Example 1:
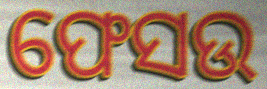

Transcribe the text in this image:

ଫେସଉ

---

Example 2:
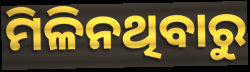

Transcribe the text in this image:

ମିଳିନଥିବାରୁ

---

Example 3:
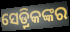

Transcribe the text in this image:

ସେଡ଼୍ରିକଙ୍କର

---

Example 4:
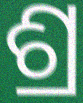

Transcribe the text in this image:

ଶ୍ର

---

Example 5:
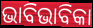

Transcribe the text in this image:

ଭାବିଭାବିକା